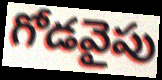
గోడవైపు